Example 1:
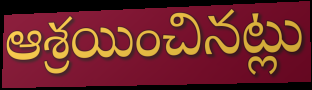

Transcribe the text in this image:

ఆశ్రయించినట్లు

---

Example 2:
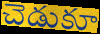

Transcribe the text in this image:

చెడుకూ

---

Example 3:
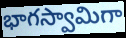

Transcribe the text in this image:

భాగస్వామిగా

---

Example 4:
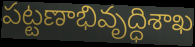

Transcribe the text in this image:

పట్టణాభివృద్ధిశాఖ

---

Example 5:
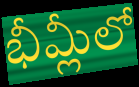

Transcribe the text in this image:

భీమ్లీలో